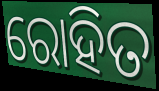
ରୋହିତ